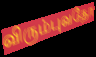
விரும்புவதோ